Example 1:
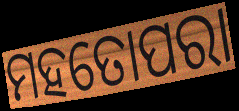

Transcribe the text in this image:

ମହତୋପରା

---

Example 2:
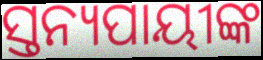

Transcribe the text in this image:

ସ୍ତନ୍ୟପାୟୀଙ୍କ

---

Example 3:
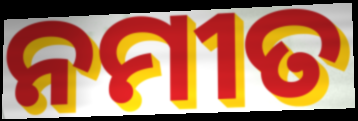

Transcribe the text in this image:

ନମୀତ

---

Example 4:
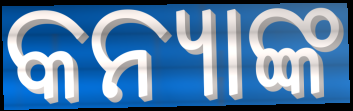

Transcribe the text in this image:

କନ୍ୟାଙ୍କ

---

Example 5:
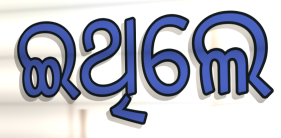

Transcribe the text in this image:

ଇଥିଲେ